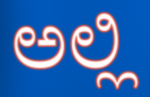
ಅಲ್ಲಿ